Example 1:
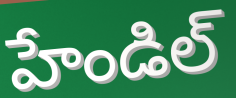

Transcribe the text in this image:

హేండిల్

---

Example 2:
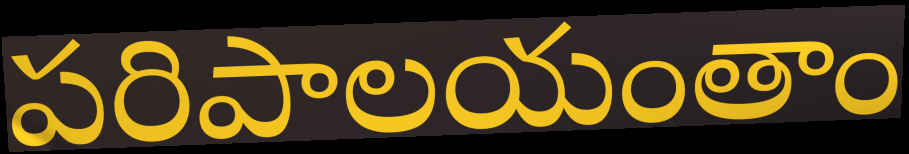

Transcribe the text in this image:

పరిపాలయంతాం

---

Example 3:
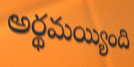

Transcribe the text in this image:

అర్థమయ్యింది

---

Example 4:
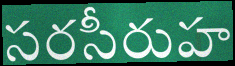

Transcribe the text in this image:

సరసీరుహ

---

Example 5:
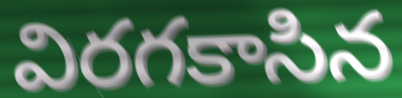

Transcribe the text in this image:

విరగకాసిన